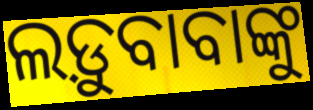
ଲଡ଼ୁବାବାଙ୍କୁ